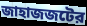
জাহাজজটের